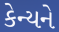
કેન્યને